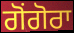
ਗੋਂਗੋਰਾ